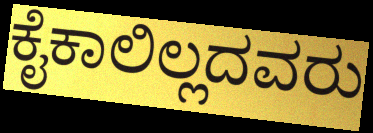
ಕೈಕಾಲಿಲ್ಲದವರು